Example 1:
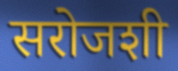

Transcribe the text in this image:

सरोजशी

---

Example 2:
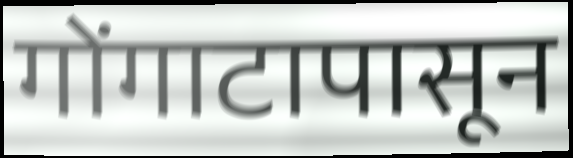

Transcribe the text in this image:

गोंगाटापासून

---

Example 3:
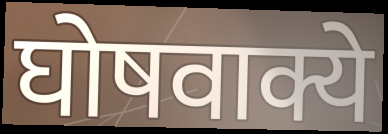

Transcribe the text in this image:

घोषवाक्ये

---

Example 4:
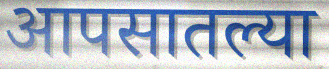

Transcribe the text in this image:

आपसातल्या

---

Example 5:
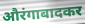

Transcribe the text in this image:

औरंगाबादकर